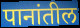
पानांतील